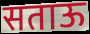
सताऊ